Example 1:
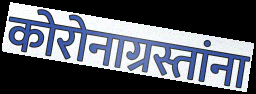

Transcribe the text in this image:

कोरोनाग्रस्तांना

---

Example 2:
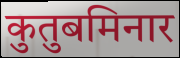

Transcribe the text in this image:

कुतुबमिनार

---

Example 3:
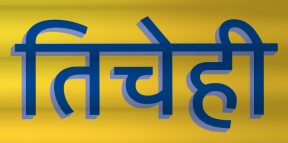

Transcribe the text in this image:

तिचेही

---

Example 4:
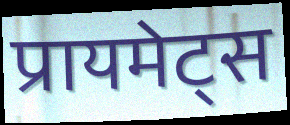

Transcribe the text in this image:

प्रायमेट्स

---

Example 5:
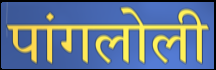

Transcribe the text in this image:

पांगलोली